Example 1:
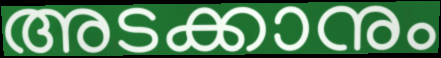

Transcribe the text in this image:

അടക്കാനും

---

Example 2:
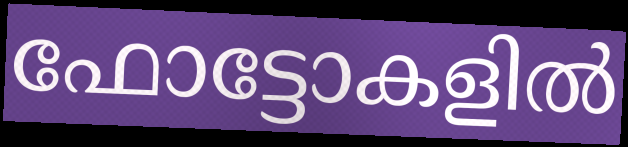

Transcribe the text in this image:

ഫോട്ടോകളിൽ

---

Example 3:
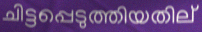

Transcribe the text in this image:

ചിട്ടപ്പെടുത്തിയതില്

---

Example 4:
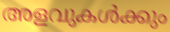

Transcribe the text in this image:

അളവുകൾക്കും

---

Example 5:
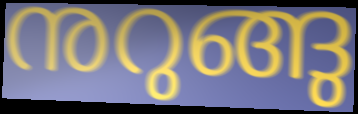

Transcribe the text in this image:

നുറുങ്ങു